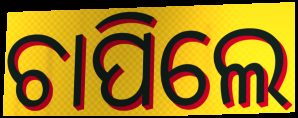
ଚାପିଲେ